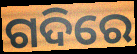
ଗଦିରେ